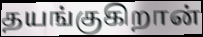
தயங்குகிறான்